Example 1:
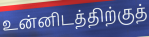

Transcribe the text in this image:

உன்னிடத்திற்குத்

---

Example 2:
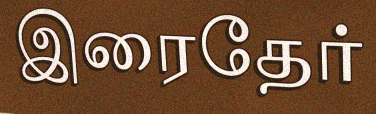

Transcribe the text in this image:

இரைதேர்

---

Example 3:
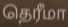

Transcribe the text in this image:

தெரீமா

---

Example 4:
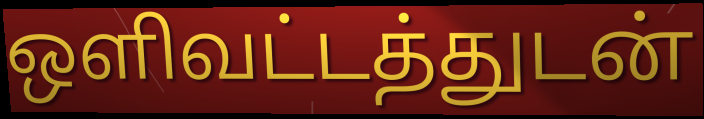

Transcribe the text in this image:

ஒளிவட்டத்துடன்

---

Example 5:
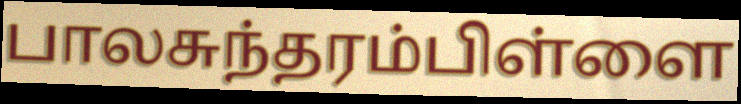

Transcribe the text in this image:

பாலசுந்தரம்பிள்ளை